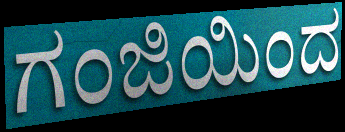
ಗಂಜಿಯಿಂದ